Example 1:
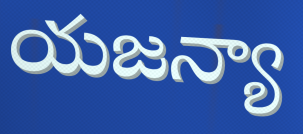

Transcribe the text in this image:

యజన్యా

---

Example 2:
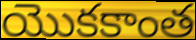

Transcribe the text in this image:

యొకకాంత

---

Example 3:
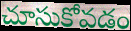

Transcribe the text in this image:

చూసుకోవడం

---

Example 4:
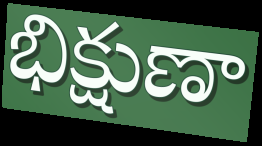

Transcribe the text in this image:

భిక్షుణా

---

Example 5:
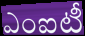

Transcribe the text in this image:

ఎంఐటీ